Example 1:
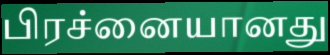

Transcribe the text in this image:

பிரச்னையானது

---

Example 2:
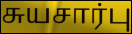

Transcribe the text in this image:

சுயசார்பு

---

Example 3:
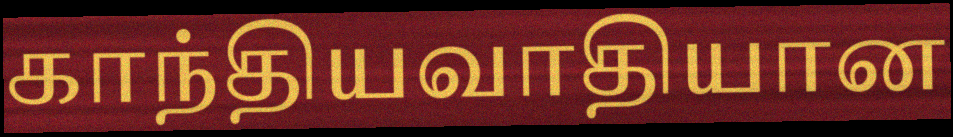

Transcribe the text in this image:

காந்தியவாதியான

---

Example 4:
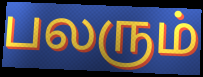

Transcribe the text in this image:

பலரும்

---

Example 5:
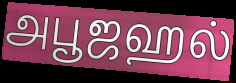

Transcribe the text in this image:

அபூஜஹல்